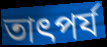
তাৎপর্য